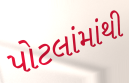
પોટલાંમાંથી